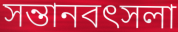
সন্তানবৎসলা